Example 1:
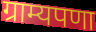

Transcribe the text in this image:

ग्राम्यपणा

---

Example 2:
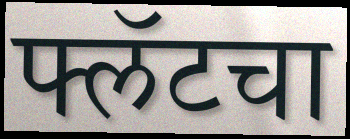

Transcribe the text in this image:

फ्लॅटचा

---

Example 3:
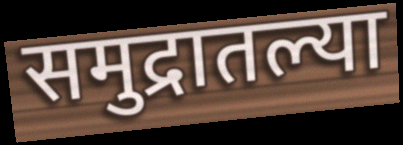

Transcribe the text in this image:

समुद्रातल्या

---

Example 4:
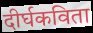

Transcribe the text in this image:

दीर्घकविता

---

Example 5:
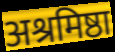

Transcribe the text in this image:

अश्रमिष्ठा